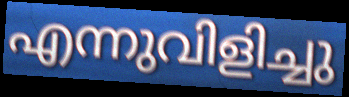
എന്നുവിളിച്ചു